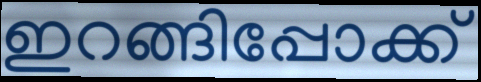
ഇറങ്ങിപ്പോക്ക്